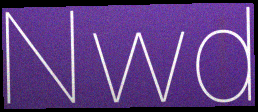
Nwd